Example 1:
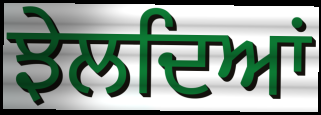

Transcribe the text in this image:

ਝੇਲਦਿਆਂ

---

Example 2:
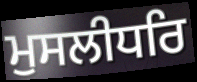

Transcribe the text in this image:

ਮੁਸਲੀਧਰਿ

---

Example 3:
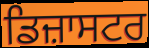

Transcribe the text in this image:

ਡਿਜ਼ਾਸਟਰ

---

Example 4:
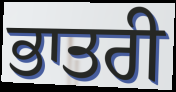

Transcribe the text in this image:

ਭਾਤਰੀ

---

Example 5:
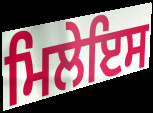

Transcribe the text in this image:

ਮਿਲੇਇਸ